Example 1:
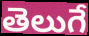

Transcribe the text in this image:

తెలుగే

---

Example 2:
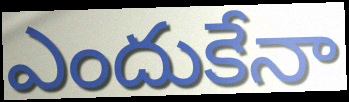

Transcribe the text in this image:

ఎందుకేనా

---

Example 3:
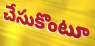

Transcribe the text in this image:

చేసుకొంటూ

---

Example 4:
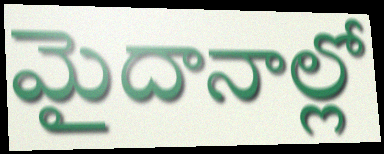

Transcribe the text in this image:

మైదానాల్లో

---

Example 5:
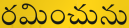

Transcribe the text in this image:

రమించును